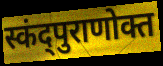
स्कंद्पुराणोक्त